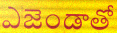
ఎజెండాతో